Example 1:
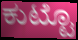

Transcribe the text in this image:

ಕುಟ್ಟೊ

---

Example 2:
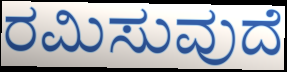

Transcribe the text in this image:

ರಮಿಸುವುದೆ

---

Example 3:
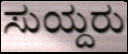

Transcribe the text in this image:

ಸುಯ್ದರು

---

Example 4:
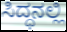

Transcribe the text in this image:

ಸಿದ್ಧನಲ್ಲಿ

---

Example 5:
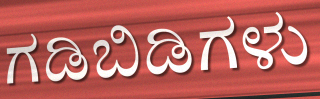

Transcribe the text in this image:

ಗಡಿಬಿಡಿಗಳು